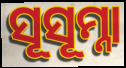
ସୂସୂମ୍ନା